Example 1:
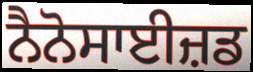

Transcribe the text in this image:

ਨੈਨੋਸਾਈਜ਼ਡ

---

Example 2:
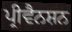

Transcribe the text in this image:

ਪ੍ਰੀਵੈਨਸ਼ਨ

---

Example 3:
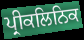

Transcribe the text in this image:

ਪ੍ਰੀਕਲਿਨਿਕ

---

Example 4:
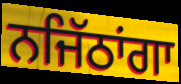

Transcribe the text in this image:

ਨਜਿੱਠਾਂਗਾ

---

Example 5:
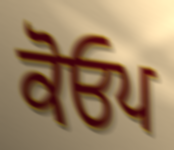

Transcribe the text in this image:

ਕੋਓਪ